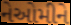
નેઓમીને